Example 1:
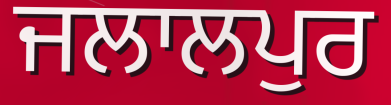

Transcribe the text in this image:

ਜਲਾਲਪੁਰ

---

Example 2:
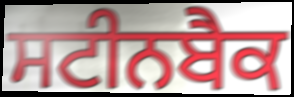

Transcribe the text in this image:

ਸਟੀਨਬੈਕ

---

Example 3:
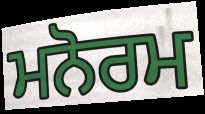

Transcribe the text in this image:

ਮਨੋਰਮ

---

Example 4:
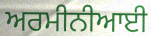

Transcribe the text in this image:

ਅਰਮੀਨੀਆਈ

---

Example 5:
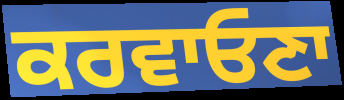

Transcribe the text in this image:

ਕਰਵਾਓਣਾ